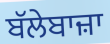
ਬੱਲੇਬਾਜ਼ਾ